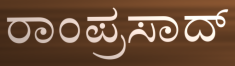
ರಾಂಪ್ರಸಾದ್